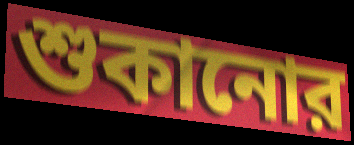
শুকানোর